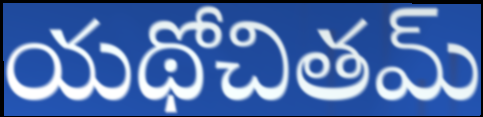
యథోచితమ్